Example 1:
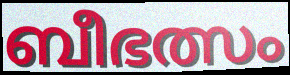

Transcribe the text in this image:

ബീഭത്സം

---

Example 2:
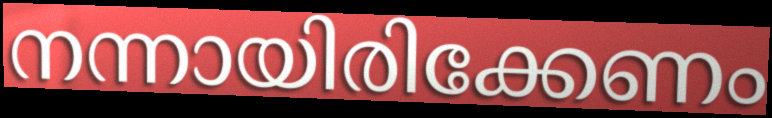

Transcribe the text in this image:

നന്നായിരിക്കേണം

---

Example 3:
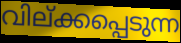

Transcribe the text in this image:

വില്ക്കപ്പെടുന്ന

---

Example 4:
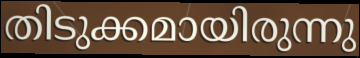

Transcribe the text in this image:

തിടുക്കമായിരുന്നു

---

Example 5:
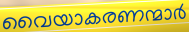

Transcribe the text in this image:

വൈയാകരണന്മാർ